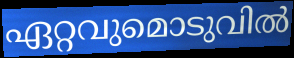
ഏറ്റവുമൊടുവിൽ